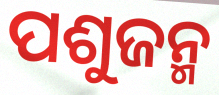
ପଶୁଜନ୍ମ